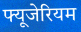
फ्यूजेरियम